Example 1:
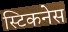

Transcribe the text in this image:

स्टिकनेस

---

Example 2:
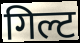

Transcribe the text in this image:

गिल्ट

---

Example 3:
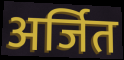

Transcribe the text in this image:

अर्जित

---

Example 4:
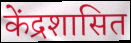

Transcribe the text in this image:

केंद्रशासित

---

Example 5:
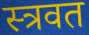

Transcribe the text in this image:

स्त्रवत